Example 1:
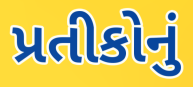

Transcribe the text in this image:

પ્રતીકોનું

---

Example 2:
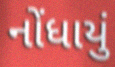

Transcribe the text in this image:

નોંધાયું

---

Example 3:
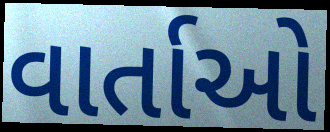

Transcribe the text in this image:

વાર્તાઓ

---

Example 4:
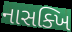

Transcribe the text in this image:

નાસક્ખિ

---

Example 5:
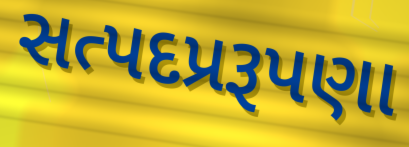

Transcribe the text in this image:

સત્પદપ્રરૂપણા